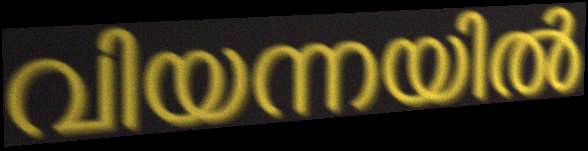
വിയന്നയിൽ